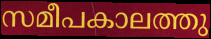
സമീപകാലത്തു